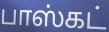
பாஸ்கட்